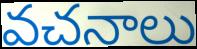
వచనాలు